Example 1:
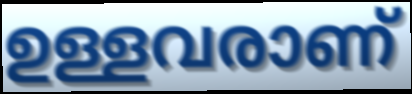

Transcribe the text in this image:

ഉള്ളവരാണ്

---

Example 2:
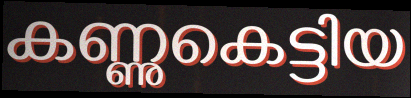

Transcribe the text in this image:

കണ്ണുകെട്ടിയ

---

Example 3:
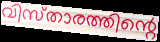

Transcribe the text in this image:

വിസ്‌താരത്തിന്റെ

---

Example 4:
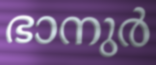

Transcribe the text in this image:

ഭാനുർ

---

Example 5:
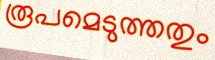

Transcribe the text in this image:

രൂപമെടുത്തതും